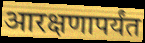
आरक्षणापर्यंत